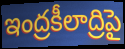
ఇంద్రకీలాద్రిపై